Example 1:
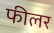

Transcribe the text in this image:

फीलर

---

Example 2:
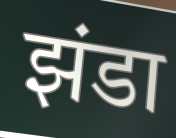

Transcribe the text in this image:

झंडा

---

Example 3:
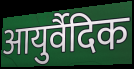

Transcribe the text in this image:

आयुर्वैदिक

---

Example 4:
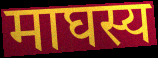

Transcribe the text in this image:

माघस्य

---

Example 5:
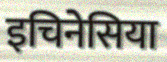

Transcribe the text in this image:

इचिनेसिया